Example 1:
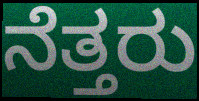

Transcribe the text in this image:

ನೆತ್ತರು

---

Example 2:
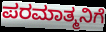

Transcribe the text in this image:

ಪರಮಾತ್ಮನಿಗೆ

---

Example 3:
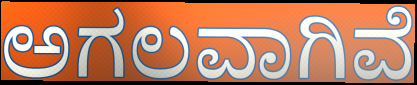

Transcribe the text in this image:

ಅಗಲವಾಗಿವೆ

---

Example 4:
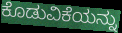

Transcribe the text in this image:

ಕೊಡುವಿಕೆಯನ್ನು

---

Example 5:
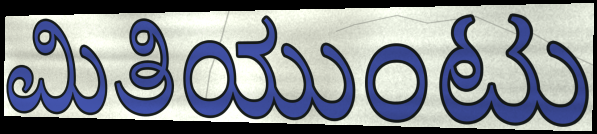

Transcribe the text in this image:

ಮಿತಿಯುಂಟು